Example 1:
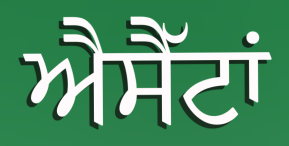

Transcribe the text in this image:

ਐਸੈੱਟਾਂ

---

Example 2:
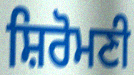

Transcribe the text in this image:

ਸ਼ਿਰੋਮਣੀ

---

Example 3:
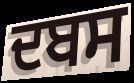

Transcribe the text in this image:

ਦਬਸ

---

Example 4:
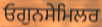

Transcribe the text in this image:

ਓਗੁਨਸੇਮਿਲਰ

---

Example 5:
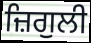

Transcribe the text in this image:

ਜ਼ਿਗੁਲੀ